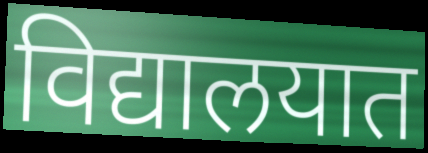
विद्यालयात